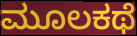
ಮೂಲಕಥೆ